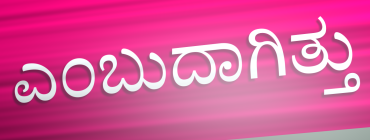
ಎಂಬುದಾಗಿತ್ತು